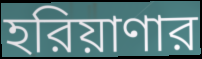
হরিয়াণার